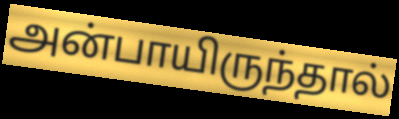
அன்பாயிருந்தால்